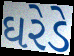
ઘરેડે